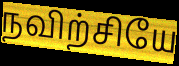
நவிற்சியே